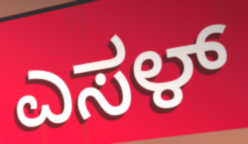
ಎಸಳ್